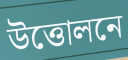
উত্তোলনে